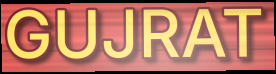
GUJRAT